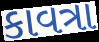
કાવત્રા